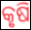
କୃଷି